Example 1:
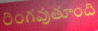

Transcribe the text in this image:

రింగవుతూంది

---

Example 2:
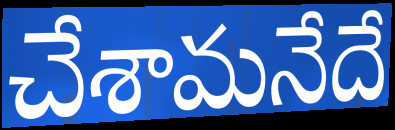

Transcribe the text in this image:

చేశామనేదే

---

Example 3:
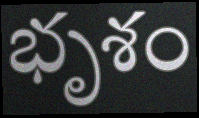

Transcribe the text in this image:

భృశం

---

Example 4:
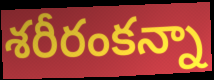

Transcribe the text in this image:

శరీరంకన్నా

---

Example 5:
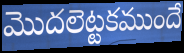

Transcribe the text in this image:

మొదలెట్టకముందే